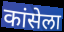
कांसेला